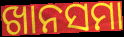
ଖାନସମା